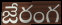
జేరంగ